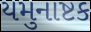
યમુનાષ્ટક